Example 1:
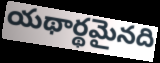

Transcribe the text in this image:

యథార్థమైనది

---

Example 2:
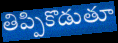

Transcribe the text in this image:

తిప్పికొడుతూ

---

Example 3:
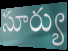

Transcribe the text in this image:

సూర్యు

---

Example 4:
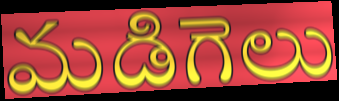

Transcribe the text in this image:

మడిగెలు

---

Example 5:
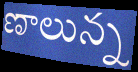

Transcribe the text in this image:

ణాలున్న